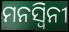
ମନସ୍ୱିନୀ